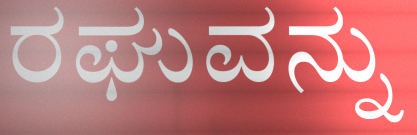
ರಘುವನ್ನು